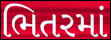
ભિતરમાં